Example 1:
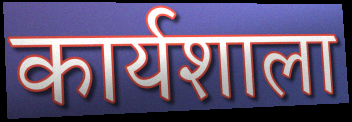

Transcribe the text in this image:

कार्यशाला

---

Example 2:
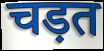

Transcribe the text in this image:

चड़त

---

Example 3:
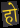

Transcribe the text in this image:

हो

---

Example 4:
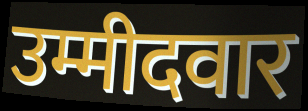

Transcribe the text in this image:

उम्‍मीदवार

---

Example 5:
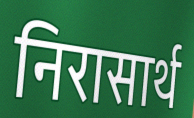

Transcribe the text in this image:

निरासार्थ